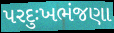
પરદુઃખભંજણા